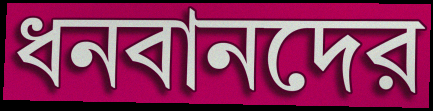
ধনবানদের